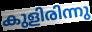
കുളിരിന്നു